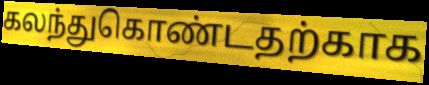
கலந்துகொண்டதற்காக